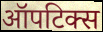
ऑपटिक्स